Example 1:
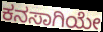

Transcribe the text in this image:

ಕನಸಾಗಿಯೇ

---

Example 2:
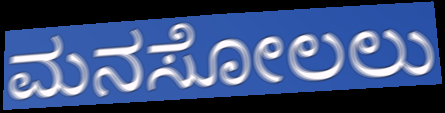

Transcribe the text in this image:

ಮನಸೋಲಲು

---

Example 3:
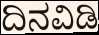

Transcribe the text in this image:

ದಿನವಿಡಿ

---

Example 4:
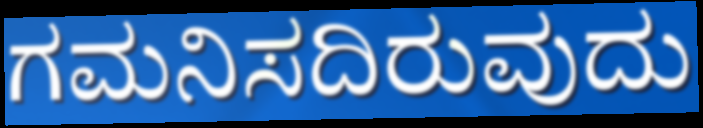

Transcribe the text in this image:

ಗಮನಿಸದಿರುವುದು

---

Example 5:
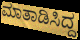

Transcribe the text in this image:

ಮಾತಾಡಿಸಿದ್ದ